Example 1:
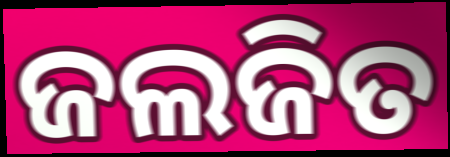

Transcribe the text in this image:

ଜଲଜିତ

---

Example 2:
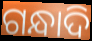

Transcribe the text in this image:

ଗନ୍ଧାଦି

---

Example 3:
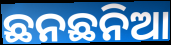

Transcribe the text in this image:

ଛନଛନିଆ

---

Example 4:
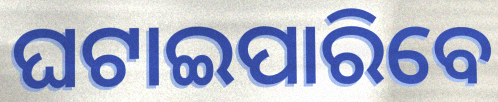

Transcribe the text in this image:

ଘଟାଇପାରିବେ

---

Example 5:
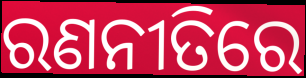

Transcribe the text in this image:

ରଣନୀତିରେ